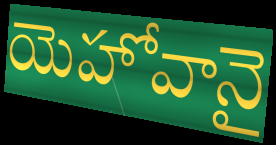
యెహోవానై